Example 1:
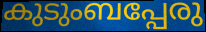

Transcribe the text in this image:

കുടുംബപ്പേരു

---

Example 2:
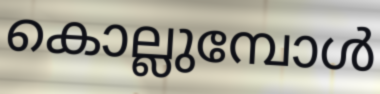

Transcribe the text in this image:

കൊല്ലുമ്പോൾ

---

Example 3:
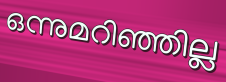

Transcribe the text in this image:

ഒന്നുമറിഞ്ഞില്ല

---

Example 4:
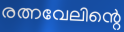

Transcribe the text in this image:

രത്നവേലിന്റെ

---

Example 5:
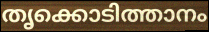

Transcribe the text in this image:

തൃക്കൊടിത്താനം